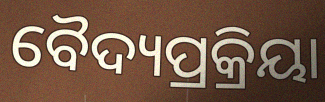
ବୈଦ୍ୟପ୍ରକ୍ରିୟା